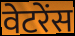
वेटरेंस